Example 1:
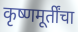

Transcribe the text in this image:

कृष्णमूर्तींचा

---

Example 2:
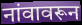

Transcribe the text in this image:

नांवावरून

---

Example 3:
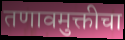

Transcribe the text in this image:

तणावमुक्तीचा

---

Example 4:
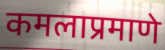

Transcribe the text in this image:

कमलाप्रमाणे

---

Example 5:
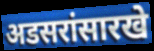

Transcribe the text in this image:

अडसरांसारखे